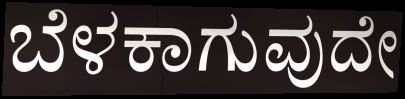
ಬೆಳಕಾಗುವುದೇ